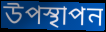
উপস্থাপন